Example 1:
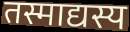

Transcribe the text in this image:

तस्माद्यस्य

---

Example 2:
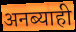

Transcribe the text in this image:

अनब्याही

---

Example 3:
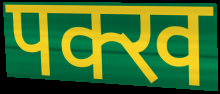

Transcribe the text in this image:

पक्ख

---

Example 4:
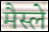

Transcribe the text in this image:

मैस्ले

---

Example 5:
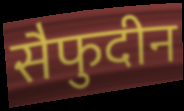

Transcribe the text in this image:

सैफुदीन